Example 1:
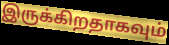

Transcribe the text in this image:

இருக்கிறதாகவும்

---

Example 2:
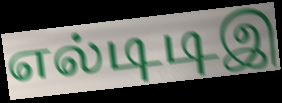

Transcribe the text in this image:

எல்டிடிஇ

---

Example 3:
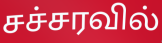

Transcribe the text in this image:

சச்சரவில்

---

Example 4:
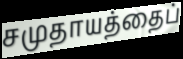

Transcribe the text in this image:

சமுதாயத்தைப்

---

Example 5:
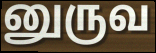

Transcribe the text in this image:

னுருவ